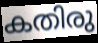
കതിരു